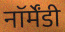
नॉर्मेंडी